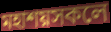
মহাশয়সকলে